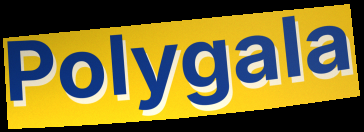
Polygala